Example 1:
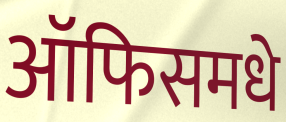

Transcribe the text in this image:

ऑफिसमधे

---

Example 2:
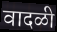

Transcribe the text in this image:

वादळी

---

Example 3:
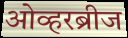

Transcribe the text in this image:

ओव्हरब्रीज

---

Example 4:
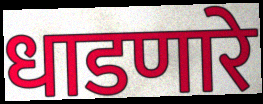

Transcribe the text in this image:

धाडणारे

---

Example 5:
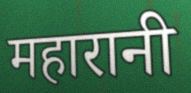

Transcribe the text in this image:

महारानी